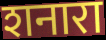
शनारा